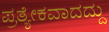
ಪ್ರತ್ಯೇಕವಾದದ್ದು